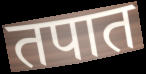
तपात